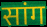
सांग